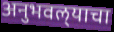
अनुभवल्याचा